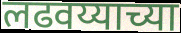
लढवय्याच्या